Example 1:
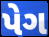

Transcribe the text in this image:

પેગ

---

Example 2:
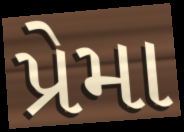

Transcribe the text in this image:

પ્રેમા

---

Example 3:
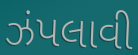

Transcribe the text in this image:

ઝંપલાવી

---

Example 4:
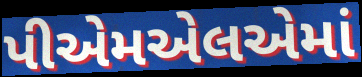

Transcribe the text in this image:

પીએમએલએમાં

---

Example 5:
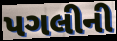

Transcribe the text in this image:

પગલીની